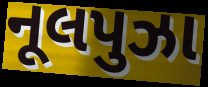
નૂલપુઝા